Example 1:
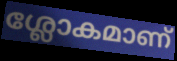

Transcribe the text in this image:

ശ്ലോകമാണ്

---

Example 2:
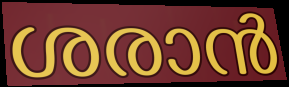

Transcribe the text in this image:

ശരാൻ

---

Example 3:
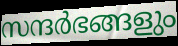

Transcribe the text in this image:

സന്ദർഭങ്ങളും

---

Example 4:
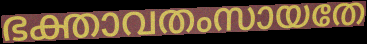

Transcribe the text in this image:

ഭക്താവതംസായതേ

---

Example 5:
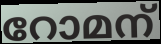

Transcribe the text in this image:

റോമന്